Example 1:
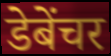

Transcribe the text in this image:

डेबेंचर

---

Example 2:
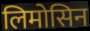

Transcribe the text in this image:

लिमोसिन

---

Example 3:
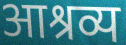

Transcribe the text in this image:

आश्रव्य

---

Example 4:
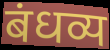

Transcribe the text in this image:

बंधव्य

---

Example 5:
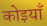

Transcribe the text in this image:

कोइयाँ